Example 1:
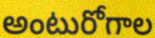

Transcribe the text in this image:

అంటురోగాల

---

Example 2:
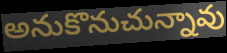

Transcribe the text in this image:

అనుకొనుచున్నావు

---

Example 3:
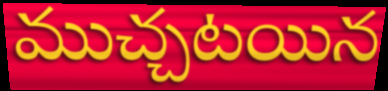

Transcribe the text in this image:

ముచ్చటయిన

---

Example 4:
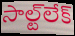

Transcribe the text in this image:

సాల్ట్‌లేక్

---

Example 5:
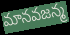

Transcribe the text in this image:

మానవజన్మ